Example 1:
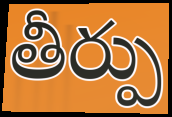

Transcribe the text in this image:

తీర్పు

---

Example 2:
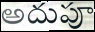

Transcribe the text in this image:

అదుపూ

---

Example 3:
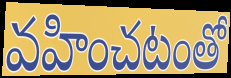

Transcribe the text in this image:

వహించటంతో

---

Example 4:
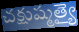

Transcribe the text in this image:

చక్షుష్మత్యై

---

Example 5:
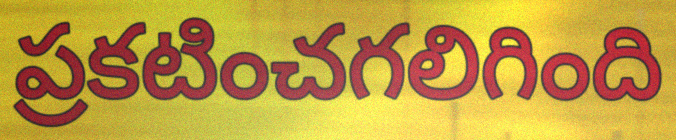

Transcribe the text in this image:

ప్రకటించగలిగింది